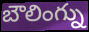
బౌలింగ్ను